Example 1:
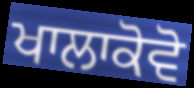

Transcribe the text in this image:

ਖਾਲਾਕੋਵੋ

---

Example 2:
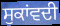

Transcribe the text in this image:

ਸੁਕਾਂਵਦੀ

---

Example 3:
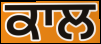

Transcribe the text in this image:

ਕਾਲ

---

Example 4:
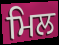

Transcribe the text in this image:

ਮਿਲ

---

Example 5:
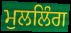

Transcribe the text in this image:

ਮੁਲਲਿੰਗ